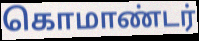
கொமாண்டர்